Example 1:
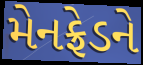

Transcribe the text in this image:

મેનફ્રેડને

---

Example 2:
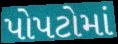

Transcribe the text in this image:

પોપટોમાં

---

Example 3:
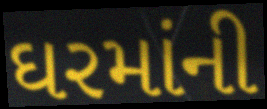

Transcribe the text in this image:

ઘરમાંની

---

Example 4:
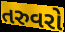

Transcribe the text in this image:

તરુવરો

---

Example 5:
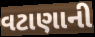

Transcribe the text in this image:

વટાણાની